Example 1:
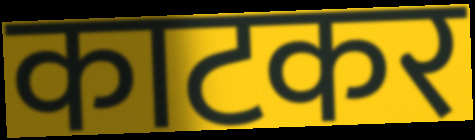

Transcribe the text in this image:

काटकर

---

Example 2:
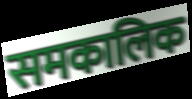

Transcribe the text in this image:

समकालिक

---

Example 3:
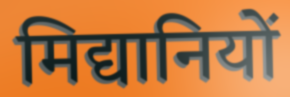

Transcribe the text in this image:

मिद्यानियों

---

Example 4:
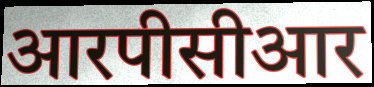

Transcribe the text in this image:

आरपीसीआर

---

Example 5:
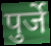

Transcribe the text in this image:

पुर्जे